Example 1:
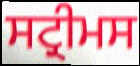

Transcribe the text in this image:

ਸਟ੍ਰੀਮਸ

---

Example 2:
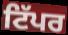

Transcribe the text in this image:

ਟਿੱਪਰ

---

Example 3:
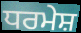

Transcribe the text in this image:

ਧਰਮੇਸ਼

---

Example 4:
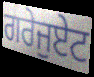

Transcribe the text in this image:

ਗਰੇਜੁਏਟ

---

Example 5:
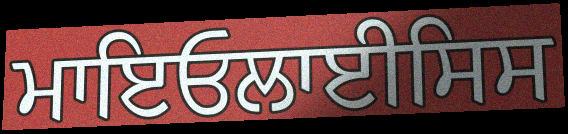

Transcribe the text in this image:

ਮਾਇਓਲਾਈਸਿਸ